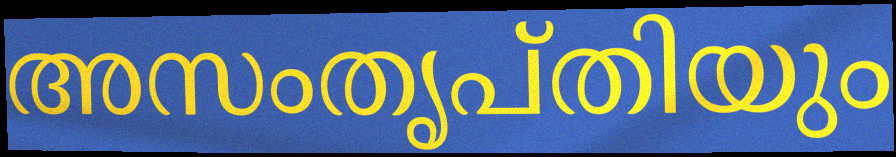
അസംതൃപ്തിയും